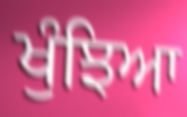
ਖੁੰਝਿਆ